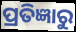
ପ୍ରତିଜ୍ଞାରୁ